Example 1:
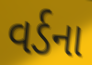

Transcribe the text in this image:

વર્ડના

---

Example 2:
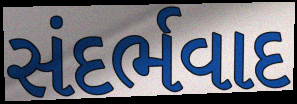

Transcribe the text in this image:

સંદર્ભવાદ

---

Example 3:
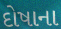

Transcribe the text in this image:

દોષાના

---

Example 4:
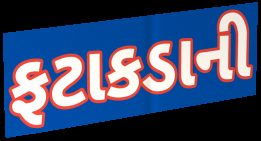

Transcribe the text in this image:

ફટાકડાની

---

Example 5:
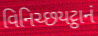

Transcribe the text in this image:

વિનિચ્છયટ્ઠાનં